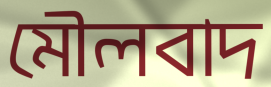
মৌলবাদ